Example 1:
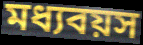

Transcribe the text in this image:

মধ্যবয়স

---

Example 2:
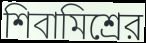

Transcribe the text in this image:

শিবামিশ্রের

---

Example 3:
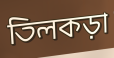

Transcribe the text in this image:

তিলকড়া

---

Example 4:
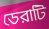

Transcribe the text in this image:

ডেরাটি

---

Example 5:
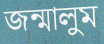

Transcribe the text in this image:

জন্মালুম